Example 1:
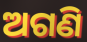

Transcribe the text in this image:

ଅଗଣି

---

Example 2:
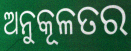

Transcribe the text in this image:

ଅନୁକୂଳତର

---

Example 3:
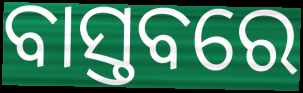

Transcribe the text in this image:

ବାସ୍ତବରେ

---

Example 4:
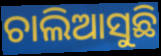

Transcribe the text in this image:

ଚାଲିଆସୁଛି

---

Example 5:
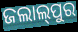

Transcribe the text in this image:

ଜଲାଲ୍‍ପୁର